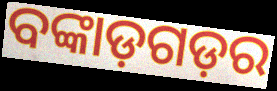
ବଙ୍କାଡ଼ଗଡ଼ର